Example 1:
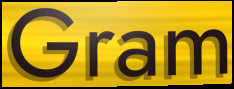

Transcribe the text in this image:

Gram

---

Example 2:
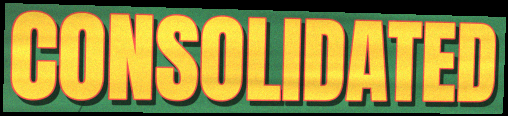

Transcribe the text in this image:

CONSOLIDATED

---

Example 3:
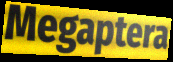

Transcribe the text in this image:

Megaptera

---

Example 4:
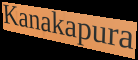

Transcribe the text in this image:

Kanakapura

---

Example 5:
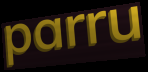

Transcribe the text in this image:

parru